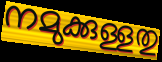
നമുക്കുള്ളതു